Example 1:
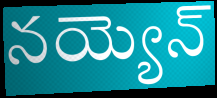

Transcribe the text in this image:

నయ్యెన్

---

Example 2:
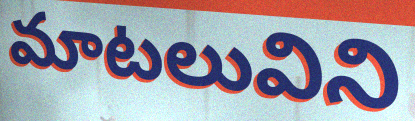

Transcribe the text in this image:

మాటలువిని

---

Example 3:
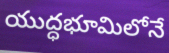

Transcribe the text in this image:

యుద్ధభూమిలోనే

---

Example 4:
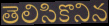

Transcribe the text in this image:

తెలిసికొనిన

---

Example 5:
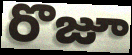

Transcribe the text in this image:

రొజూ